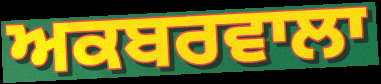
ਅਕਬਰਵਾਲਾ